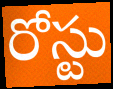
రోస్టు